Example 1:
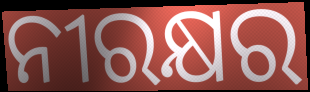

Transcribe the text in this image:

ନୀରକ୍ଷର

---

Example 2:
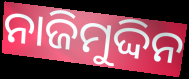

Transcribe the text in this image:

ନାଜିମୁଦ୍ଦିନ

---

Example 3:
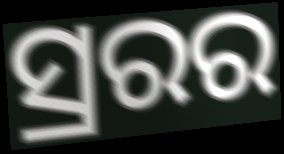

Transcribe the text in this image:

ସ୍ରରର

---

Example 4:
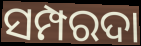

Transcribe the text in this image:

ସମ୍ପରଦା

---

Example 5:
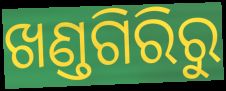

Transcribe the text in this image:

ଖଣ୍ଡଗିରିରୁ